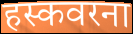
हस्कवरना